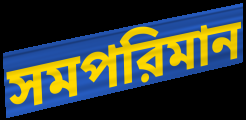
সমপরিমান